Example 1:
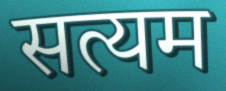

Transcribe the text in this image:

सत्यम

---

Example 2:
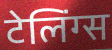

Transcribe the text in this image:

टेलिंग्स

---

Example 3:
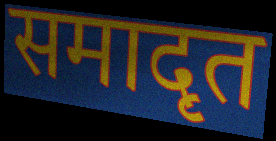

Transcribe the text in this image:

समादृत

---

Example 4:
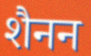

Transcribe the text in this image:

शैनन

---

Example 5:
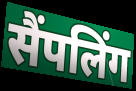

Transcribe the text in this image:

सैंपलिंग